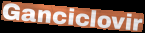
Ganciclovir